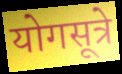
योगसूत्रे